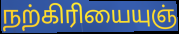
நற்கிரியையுஞ்